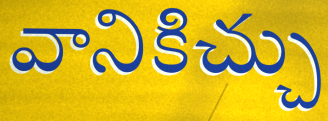
వానికిచ్చు